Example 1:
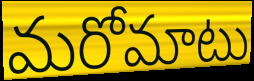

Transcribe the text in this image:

మరోమాటు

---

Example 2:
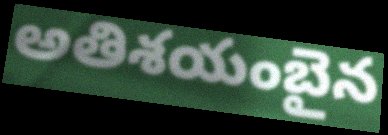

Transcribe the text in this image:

అతిశయంబైన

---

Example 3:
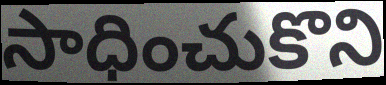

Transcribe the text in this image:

సాధించుకొని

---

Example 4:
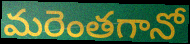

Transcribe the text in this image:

మరెంతగానో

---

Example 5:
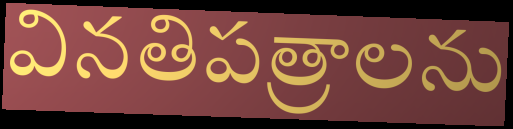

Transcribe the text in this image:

వినతిపత్రాలను